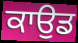
ਕਾਉਡ